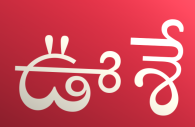
ఊశే